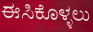
ಈಸಿಕೊಳ್ಳಲು